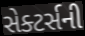
સેક્ટર્સની